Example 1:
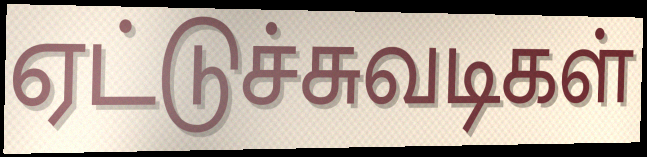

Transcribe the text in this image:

ஏட்டுச்சுவடிகள்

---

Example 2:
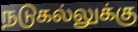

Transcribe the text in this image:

நடுகல்லுக்கு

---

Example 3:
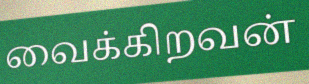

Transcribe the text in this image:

வைக்கிறவன்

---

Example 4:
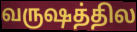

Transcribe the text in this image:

வருஷத்தில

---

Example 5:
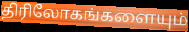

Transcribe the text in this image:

திரிலோகங்களையும்